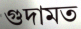
গুদামত